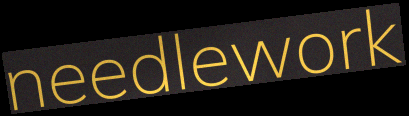
needlework